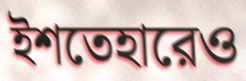
ইশতেহারেও